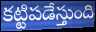
కట్టిపడేస్తుంది